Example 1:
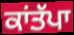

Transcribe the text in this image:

ਕਾਂਤੱਪਾ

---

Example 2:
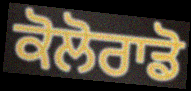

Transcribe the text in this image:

ਕੋਲੋਰਾਡੋ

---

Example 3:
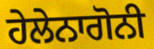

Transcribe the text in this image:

ਹੇਲੇਨਾਗੋਨੀ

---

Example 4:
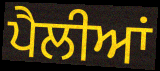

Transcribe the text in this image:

ਪੈਲੀਆਂ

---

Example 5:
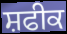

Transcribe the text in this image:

ਸ਼ਫੀਕ